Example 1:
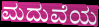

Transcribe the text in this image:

ಮದುವೆಯ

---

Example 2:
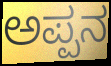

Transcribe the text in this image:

ಅಪ್ಪನ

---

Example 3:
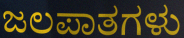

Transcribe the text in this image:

ಜಲಪಾತಗಳು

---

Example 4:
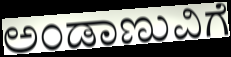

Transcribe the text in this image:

ಅಂಡಾಣುವಿಗೆ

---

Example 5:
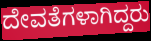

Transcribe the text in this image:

ದೇವತೆಗಳಾಗಿದ್ದರು